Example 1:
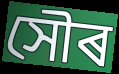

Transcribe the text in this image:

সৌৰ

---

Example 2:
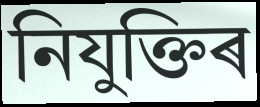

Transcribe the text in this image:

নিযুক্তিৰ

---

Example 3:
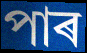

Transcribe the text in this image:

পাৰ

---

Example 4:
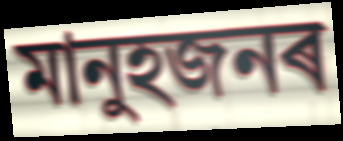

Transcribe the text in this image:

মানুহজনৰ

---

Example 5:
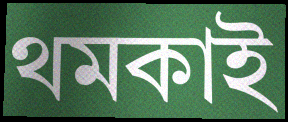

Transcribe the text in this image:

থমকাই